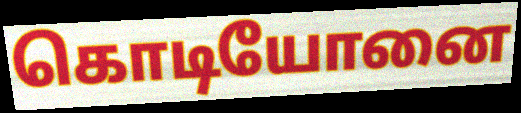
கொடியோனை